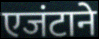
एजंटाने